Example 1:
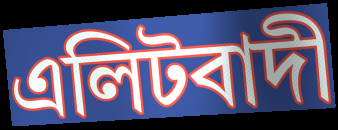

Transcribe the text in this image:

এলিটবাদী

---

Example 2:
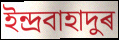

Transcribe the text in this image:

ইন্দ্ৰবাহাদুৰ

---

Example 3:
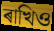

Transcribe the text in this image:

ৰাখিও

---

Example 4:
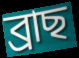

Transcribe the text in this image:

ব্ৰাছ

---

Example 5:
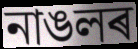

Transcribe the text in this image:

নাঙলৰ